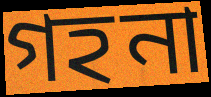
গহনা